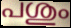
പശും